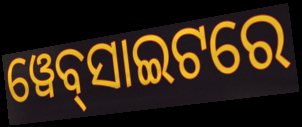
ୱେବ୍‍ସାଇଟରେ